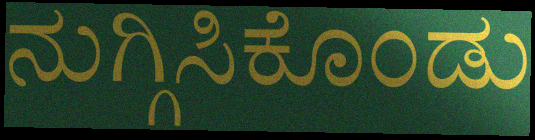
ನುಗ್ಗಿಸಿಕೊಂಡು